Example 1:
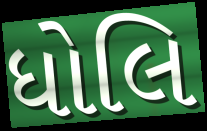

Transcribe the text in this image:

ધોલિ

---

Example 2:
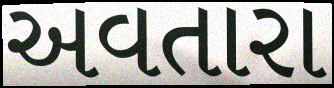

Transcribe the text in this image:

અવતારા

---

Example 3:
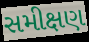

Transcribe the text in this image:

સમીક્ષણ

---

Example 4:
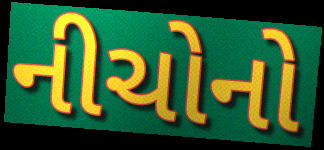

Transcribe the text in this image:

નીચોનો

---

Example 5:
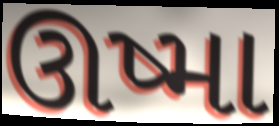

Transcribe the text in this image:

ઊષ્મા